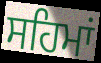
ਸਹਿਮਾਂ